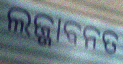
ଲଜ୍ଜାବନତ